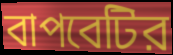
বাপবেটির